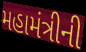
મહામંત્રીની